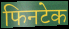
फिनटेक